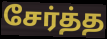
சேர்த்த